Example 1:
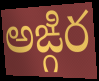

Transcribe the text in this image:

అఙ్గిర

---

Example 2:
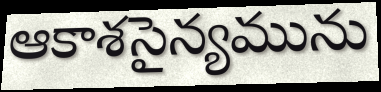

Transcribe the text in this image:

ఆకాశసైన్యమును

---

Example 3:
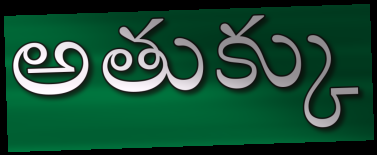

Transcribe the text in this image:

అతుక్కు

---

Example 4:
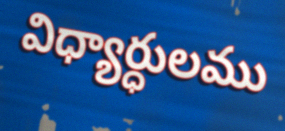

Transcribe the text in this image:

విధ్యార్ధులము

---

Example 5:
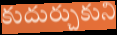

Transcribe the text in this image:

కుదుర్చుకుని